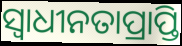
ସ୍ୱାଧୀନତାପ୍ରାପ୍ତି